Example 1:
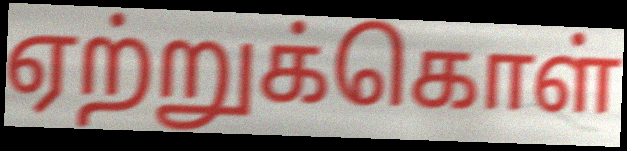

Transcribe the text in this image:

ஏற்றுக்கொள்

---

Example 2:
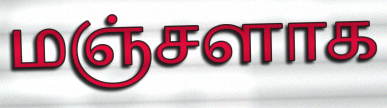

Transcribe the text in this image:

மஞ்சளாக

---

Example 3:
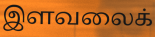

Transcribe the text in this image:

இளவலைக்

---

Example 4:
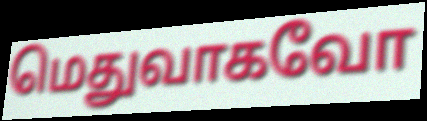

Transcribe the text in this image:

மெதுவாகவோ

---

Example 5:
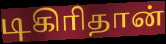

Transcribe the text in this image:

டிகிரிதான்